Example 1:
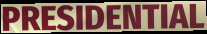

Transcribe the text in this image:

PRESIDENTIAL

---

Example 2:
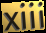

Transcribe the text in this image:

xiii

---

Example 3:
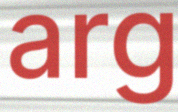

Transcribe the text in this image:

arg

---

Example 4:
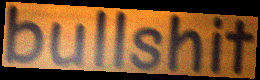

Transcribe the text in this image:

bullshit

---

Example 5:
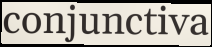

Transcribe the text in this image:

conjunctiva